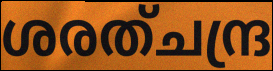
ശരത്ചന്ദ്ര